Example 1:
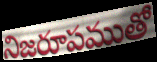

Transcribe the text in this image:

నిజరూపముతో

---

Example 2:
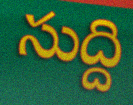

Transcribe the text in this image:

సుద్ది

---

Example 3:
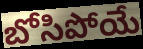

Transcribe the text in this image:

బోసిపోయే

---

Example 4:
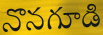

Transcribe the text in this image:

నొనగూడి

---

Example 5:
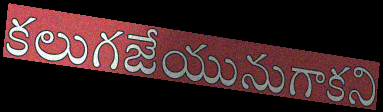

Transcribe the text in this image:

కలుగజేయునుగాకని